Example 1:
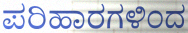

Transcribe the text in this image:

ಪರಿಹಾರಗಳಿಂದ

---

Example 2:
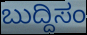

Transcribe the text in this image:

ಬುದ್ದಿಸಂ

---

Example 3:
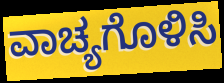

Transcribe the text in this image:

ವಾಚ್ಯಗೊಳಿಸಿ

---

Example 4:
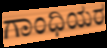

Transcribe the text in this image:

ಗಾಂಧಿಯರ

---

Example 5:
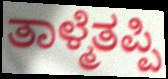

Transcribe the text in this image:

ತಾಳ್ಮೆತಪ್ಪಿ